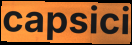
capsici